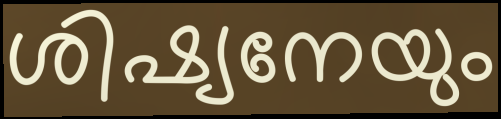
ശിഷ്യനേയും